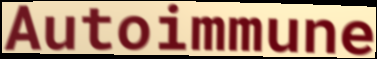
Autoimmune